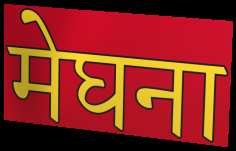
मेघना